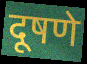
दूषणे